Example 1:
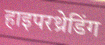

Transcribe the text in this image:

हाइपरथ्रेडिंग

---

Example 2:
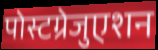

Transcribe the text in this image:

पोस्टग्रेजुएशन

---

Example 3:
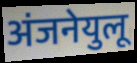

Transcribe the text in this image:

अंजनेयुलू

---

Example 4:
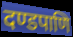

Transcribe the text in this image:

दण्डपाणि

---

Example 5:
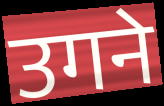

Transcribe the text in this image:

उगने